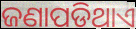
ଜଣାପଡିଥାଏ